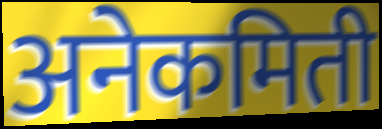
अनेकमिती